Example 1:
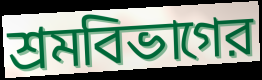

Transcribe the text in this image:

শ্রমবিভাগের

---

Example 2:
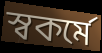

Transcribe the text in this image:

স্বকর্মে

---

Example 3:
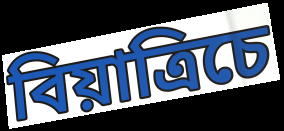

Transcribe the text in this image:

বিয়াত্রিচে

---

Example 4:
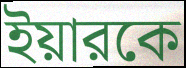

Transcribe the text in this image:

ইয়ারকে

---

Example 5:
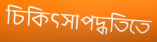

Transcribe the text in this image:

চিকিৎসাপদ্ধতিতে